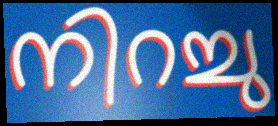
നിറച്ചു